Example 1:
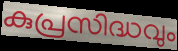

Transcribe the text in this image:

കുപ്രസിദ്ധവും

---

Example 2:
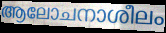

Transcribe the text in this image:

ആലോചനാശീലം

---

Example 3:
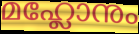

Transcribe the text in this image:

മഹ്ലോനും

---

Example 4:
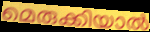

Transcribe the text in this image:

മെരുക്കിയാൽ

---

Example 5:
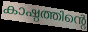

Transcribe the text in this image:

കാഷ്ഠത്തിന്റെ